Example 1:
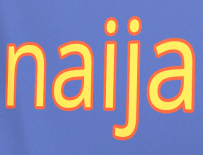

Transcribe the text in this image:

naija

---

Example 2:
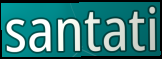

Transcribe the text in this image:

santati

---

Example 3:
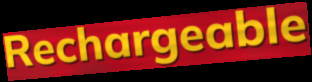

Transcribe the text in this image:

Rechargeable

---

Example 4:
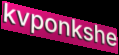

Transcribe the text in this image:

kvponkshe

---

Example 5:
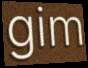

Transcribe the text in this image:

gim